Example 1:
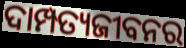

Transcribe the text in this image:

ଦାମ୍ପତ୍ୟଜୀବନର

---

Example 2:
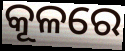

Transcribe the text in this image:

କୂଳରେ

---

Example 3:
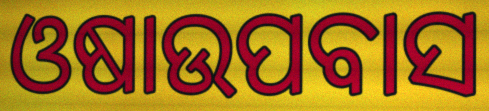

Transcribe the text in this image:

ଓଷାଉପବାସ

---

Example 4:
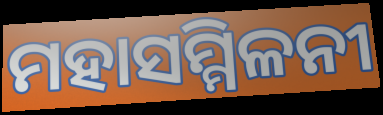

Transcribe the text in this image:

ମହାସମ୍ମିଳନୀ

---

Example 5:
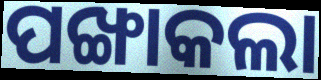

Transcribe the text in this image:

ପଙ୍ଖାକଲା